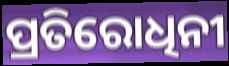
ପ୍ରତିରୋଧିନୀ